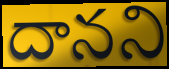
దానని